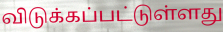
விடுக்கப்பட்டுள்ளது